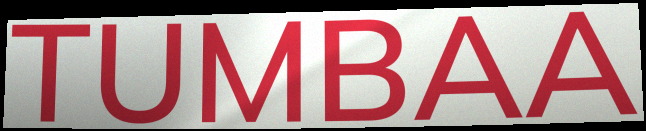
TUMBAA